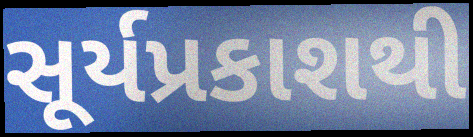
સૂર્યપ્રકાશથી